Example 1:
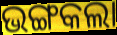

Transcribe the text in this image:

ଭଙ୍ଗକଲା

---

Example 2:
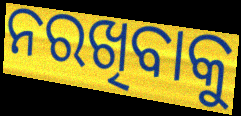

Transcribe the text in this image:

ନରଖିବାକୁ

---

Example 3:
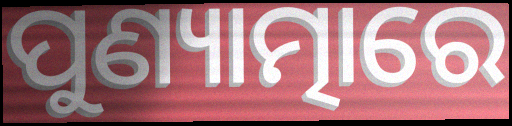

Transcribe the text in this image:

ପୁଣ୍ୟାତ୍ମାରେ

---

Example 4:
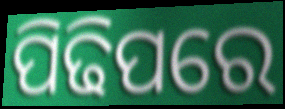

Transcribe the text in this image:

ପିଢିପରେ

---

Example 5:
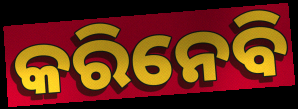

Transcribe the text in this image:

କରିନେବି